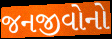
જનજીવોનો